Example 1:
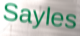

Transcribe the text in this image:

Sayles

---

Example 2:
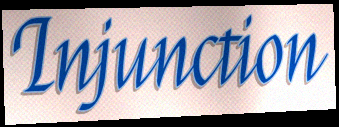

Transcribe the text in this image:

Injunction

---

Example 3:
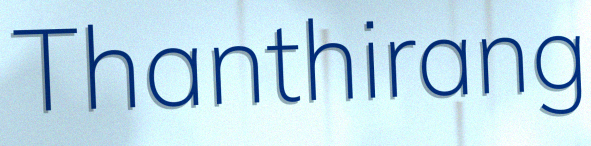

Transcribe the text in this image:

Thanthirang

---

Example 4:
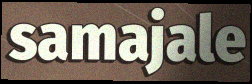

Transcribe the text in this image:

samajale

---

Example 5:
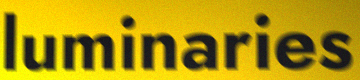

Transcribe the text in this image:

luminaries